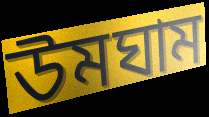
উমঘাম